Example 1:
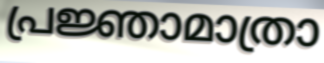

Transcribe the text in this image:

പ്രജ്ഞാമാത്രാ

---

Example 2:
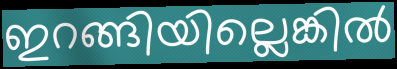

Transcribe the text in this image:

ഇറങ്ങിയില്ലെങ്കിൽ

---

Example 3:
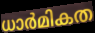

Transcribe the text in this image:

ധാർമികത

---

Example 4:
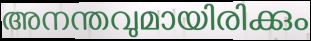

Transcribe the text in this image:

അനന്തവുമായിരിക്കും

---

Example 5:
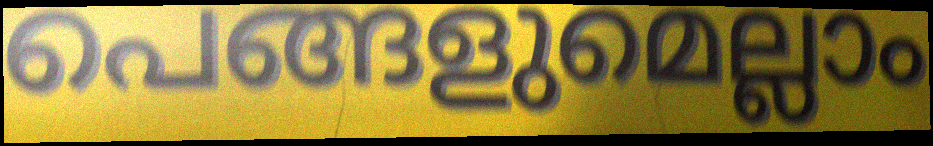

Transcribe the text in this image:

പെങ്ങളുമെല്ലാം